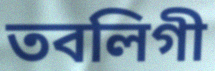
তবলিগী